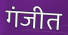
गंजीत